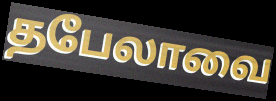
தபேலாவை